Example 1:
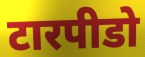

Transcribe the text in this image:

टारपीडो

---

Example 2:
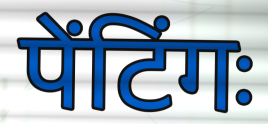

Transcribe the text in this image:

पेंटिंगः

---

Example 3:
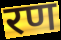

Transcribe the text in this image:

रण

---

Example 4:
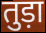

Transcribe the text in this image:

तुड़ा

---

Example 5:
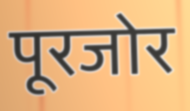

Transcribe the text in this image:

पूरजोर